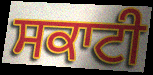
ਸਕਾਟੀ